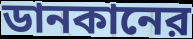
ডানকানের